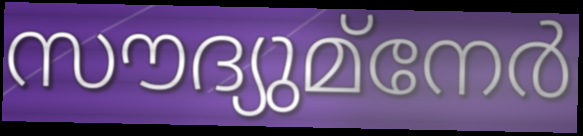
സൗദ്യുമ്നേർ